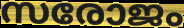
സരോജം